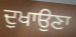
ਦੁਖਾਉਣਾ